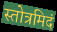
स्तोत्रमिदं